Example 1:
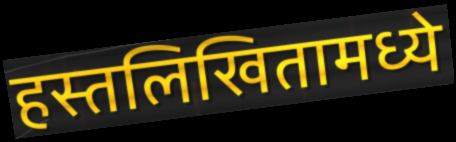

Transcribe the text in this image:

हस्तलिखितामध्ये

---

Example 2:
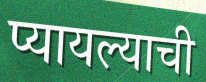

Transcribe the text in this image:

प्यायल्याची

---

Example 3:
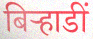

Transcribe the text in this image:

बिर्‍हाडीं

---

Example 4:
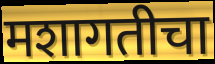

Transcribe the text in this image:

मशागतीचा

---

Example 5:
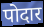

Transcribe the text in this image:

पोदार